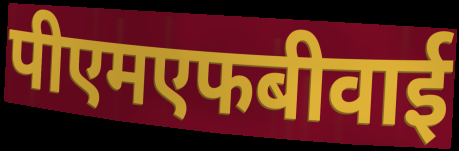
पीएमएफबीवाई